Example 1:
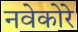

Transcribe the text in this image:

नवेकोरे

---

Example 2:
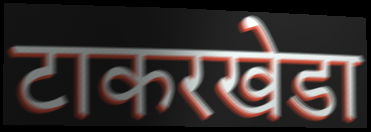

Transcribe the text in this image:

टाकरखेडा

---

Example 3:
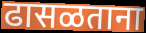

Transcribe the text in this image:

ढासळताना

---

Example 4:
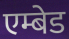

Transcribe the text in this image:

एम्बेड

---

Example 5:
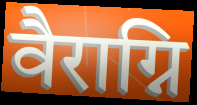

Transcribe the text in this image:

वैराग्नि